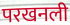
परखनली